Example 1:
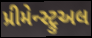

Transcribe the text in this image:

પ્રીમેન્સ્ટ્રુઅલ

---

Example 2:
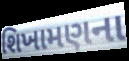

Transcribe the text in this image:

શિખામણના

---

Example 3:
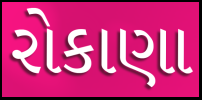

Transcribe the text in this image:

રોકાણા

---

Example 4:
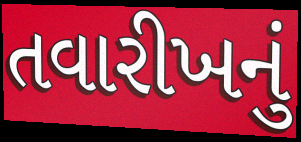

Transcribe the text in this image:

તવારીખનું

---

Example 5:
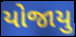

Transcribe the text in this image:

યોજાયુ